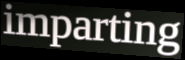
imparting